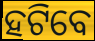
ହଟିବେ